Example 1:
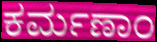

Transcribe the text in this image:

ಕರ್ಮಣಾಂ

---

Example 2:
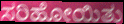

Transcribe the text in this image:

ಸರಿಹೋಯಿತು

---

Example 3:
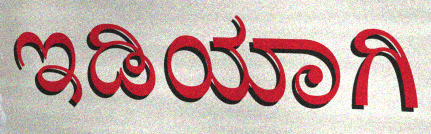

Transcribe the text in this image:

ಇಡಿಯಾಗಿ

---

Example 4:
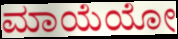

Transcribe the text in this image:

ಮಾಯೆಯೋ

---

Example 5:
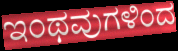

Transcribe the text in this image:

ಇಂಥವುಗಳಿಂದ